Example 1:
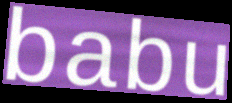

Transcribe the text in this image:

babu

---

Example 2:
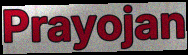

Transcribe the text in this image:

Prayojan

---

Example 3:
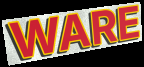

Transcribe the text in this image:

WARE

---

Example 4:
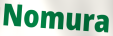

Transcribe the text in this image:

Nomura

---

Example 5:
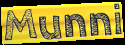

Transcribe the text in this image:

Munni